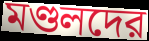
মণ্ডলদের